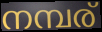
നമ്പര്